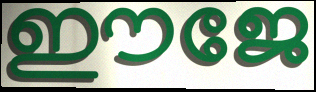
ഈജേ